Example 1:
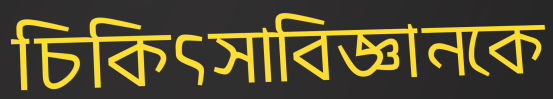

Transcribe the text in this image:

চিকিৎসাবিজ্ঞানকে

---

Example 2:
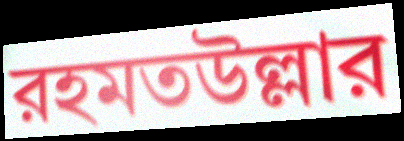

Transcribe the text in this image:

রহমতউল্লার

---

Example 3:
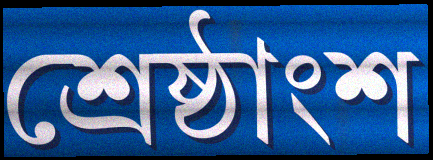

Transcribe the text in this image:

শ্রেষ্ঠাংশ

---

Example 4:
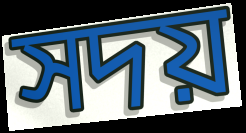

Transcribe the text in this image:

সদয়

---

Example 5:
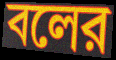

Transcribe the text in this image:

বলের